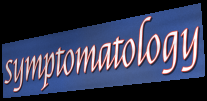
symptomatology